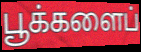
பூக்களைப்